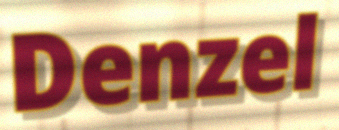
Denzel